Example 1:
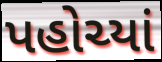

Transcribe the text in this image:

પહોચ્યાં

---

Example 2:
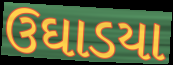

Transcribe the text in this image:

ઉઘાડયા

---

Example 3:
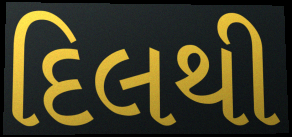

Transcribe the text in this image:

દિલથી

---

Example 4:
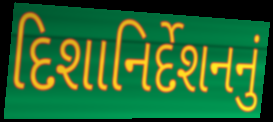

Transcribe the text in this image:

દિશાનિર્દેશનનું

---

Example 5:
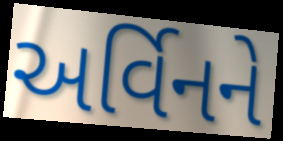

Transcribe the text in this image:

અર્વિનને